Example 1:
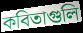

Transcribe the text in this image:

কবিতাগুলি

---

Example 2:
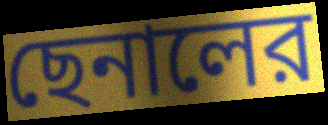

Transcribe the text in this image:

ছেনালের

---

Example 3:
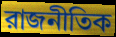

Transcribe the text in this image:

রাজনীতিক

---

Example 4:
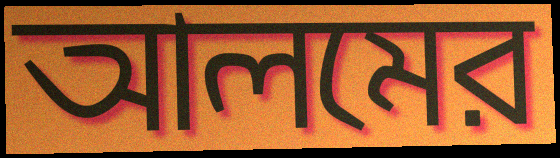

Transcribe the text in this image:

আলমের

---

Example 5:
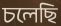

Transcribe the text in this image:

চলেছি